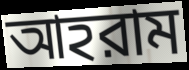
আহরাম